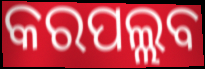
କରପଲ୍ଲବ